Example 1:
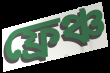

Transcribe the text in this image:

ফ্ৰেঞ্চ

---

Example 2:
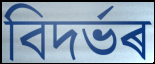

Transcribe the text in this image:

বিদৰ্ভৰ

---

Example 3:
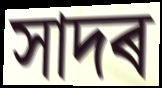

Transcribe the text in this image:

সাদৰ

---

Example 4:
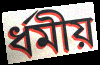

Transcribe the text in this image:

ৰ্ধমীয়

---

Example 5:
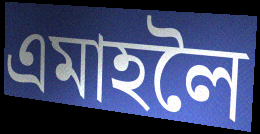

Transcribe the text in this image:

এমাহলৈ